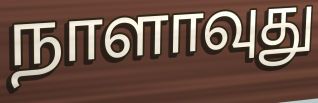
நாளாவுது